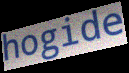
hogide